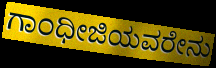
ಗಾಂಧೀಜಿಯವರೇನು